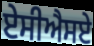
ਏਸੀਐਸਏ